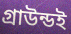
গ্রাউন্ডই